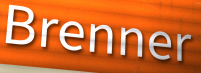
Brenner